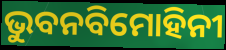
ଭୁବନବିମୋହିନୀ